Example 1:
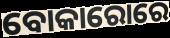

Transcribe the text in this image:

ବୋକାରୋରେ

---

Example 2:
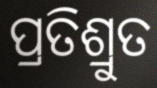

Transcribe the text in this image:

ପ୍ରତିଶ୍ରୁତ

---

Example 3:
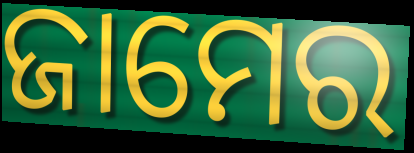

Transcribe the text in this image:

ଜାମେର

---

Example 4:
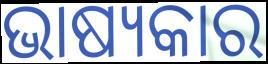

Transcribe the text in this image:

ଭାଷ୍ୟକାର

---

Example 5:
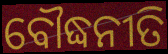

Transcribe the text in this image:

ବୌଦ୍ଧନୀତି